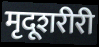
मृदूशरीरी